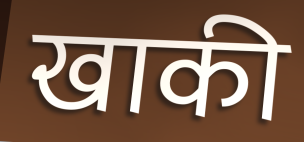
खाकी